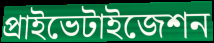
প্রাইভেটাইজেশন